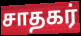
சாதகர்